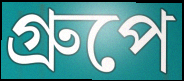
গ্রুপে